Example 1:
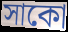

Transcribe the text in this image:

সাকো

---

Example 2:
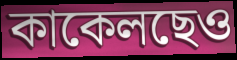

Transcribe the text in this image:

কাকেলছেও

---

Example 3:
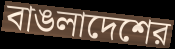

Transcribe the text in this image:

বাঙলাদেশের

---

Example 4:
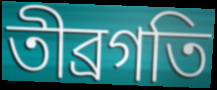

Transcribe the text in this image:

তীব্রগতি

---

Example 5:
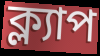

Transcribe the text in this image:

ক্ল্যাপ